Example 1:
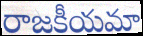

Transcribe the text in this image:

రాజకీయమా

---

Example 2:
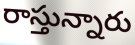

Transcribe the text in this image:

రాస్తున్నారు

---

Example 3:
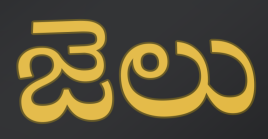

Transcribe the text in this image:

జెలు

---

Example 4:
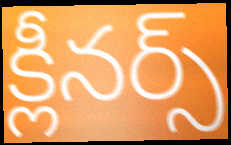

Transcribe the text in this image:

క్లీనర్స్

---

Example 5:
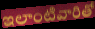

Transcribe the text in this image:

ఇలాంటివారితో